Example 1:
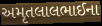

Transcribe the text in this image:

અમૃતલાલભાઈના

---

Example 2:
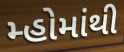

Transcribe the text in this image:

મ્હોમાંથી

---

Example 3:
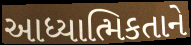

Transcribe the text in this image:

આધ્યાત્મિકતાને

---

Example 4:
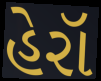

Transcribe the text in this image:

હેરૉ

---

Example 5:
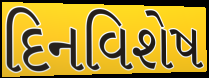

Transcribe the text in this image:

દિનવિશેષ